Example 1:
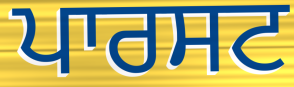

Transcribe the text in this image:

ਪਾਰਸਟ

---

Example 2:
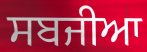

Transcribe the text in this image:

ਸਬਜੀਆ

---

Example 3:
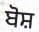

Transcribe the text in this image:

ਬੋਸ਼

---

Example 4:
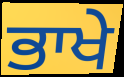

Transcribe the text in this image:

ਭਾਖੇ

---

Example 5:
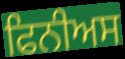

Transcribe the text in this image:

ਫਿਨੀਅਸ